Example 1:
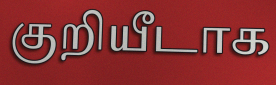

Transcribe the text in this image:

குறியீடாக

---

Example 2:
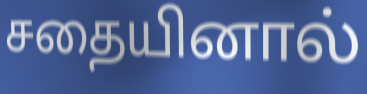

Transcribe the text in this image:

சதையினால்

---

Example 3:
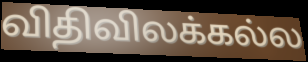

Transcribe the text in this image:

விதிவிலக்கல்ல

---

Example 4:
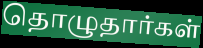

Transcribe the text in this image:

தொழுதார்கள்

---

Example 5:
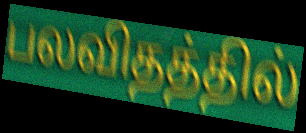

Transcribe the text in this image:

பலவிதத்தில்